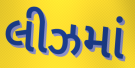
લીઝમાં